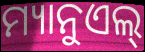
ମ୍ୟାନୁଏଲ୍